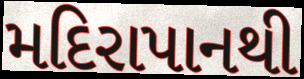
મદિરાપાનથી